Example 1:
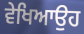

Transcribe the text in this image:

ਵੇਖਿਆਉਹ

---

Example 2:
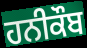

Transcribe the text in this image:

ਹਨੀਕੌਬ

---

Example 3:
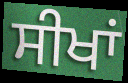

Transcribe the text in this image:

ਸੀਖਾਂ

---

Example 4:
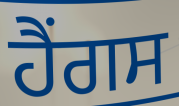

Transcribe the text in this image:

ਹੈਂਗਸ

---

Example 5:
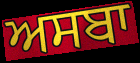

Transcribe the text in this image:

ਅਸਬਾ